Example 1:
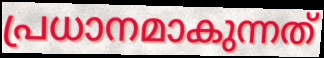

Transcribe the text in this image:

പ്രധാനമാകുന്നത്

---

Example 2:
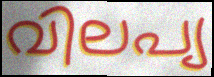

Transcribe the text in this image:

വിലപ്യ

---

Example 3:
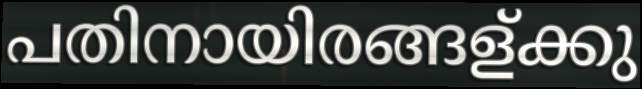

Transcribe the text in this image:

പതിനായിരങ്ങള്ക്കു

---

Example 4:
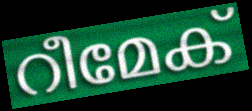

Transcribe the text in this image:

റീമേക്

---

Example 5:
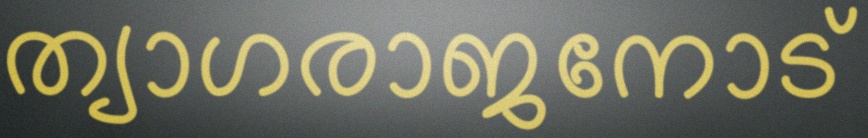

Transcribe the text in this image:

ത്യാഗരാജനോട്